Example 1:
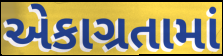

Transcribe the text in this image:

એકાગ્રતામાં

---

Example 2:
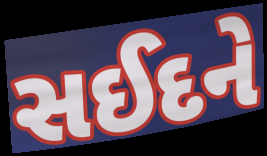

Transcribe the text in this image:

સઈદને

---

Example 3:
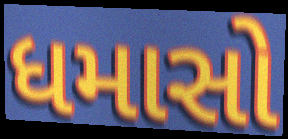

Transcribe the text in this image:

ધમાસો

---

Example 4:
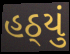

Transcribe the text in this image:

હઠ્યું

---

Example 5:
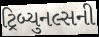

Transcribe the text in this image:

ટ્રિબ્યુનલ્સની